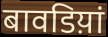
बावडिय़ां